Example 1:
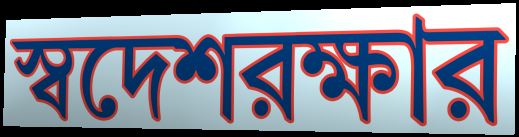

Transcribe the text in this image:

স্বদেশরক্ষার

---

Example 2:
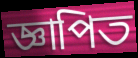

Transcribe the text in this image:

জ্ঞাপিত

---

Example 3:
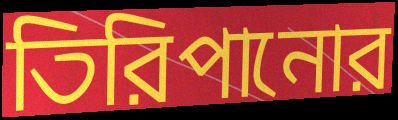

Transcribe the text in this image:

তিরিপানোর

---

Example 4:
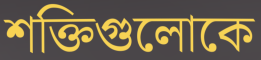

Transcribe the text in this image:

শক্তিগুলোকে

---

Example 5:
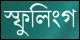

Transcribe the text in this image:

স্ফুলিংগ